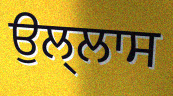
ਉਲ੍ਲਾਸ